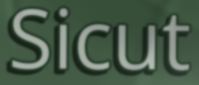
Sicut